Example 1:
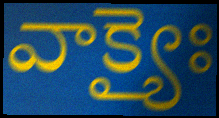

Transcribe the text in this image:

వాక్యైః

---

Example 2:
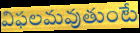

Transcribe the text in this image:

విఫలమవుతుంటే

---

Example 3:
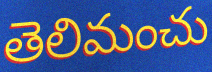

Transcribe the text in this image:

తెలిమంచు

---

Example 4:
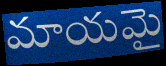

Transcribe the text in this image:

మాయమై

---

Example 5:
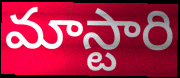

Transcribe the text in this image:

మాస్టారి